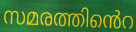
സമരത്തിൻെറ